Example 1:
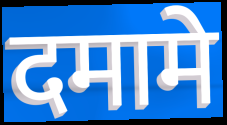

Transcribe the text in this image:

दमामे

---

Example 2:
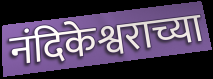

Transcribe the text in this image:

नंदिकेश्वराच्या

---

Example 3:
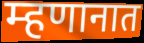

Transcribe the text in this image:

म्हणानात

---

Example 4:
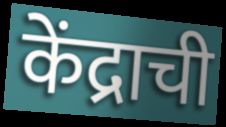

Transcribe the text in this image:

केंद्राची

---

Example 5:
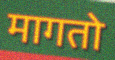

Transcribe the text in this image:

मागतो